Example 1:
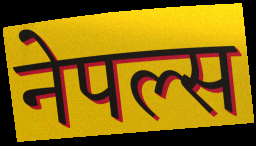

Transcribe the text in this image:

नेपल्स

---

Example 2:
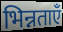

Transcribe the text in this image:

भिन्नताएँ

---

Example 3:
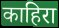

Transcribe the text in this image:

काहिरा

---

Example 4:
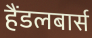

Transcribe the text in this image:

हैंडलबार्स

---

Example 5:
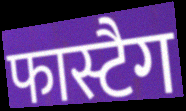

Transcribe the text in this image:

फास्टैग